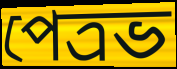
পেত্রভ